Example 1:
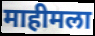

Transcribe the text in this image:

माहीमला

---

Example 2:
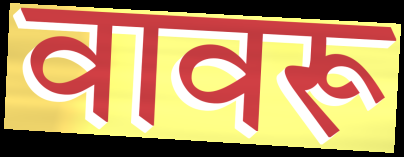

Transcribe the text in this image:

वावरू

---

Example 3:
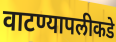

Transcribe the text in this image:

वाटण्यापलीकडे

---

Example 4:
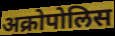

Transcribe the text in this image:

अक्रोपोलिस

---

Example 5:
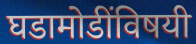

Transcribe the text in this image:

घडामोडींविषयी